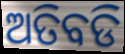
ଅତିବଡି